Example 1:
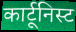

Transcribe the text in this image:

कार्टूनिस्ट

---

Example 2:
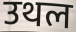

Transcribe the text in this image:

उथल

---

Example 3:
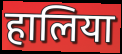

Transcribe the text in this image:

हालिया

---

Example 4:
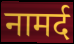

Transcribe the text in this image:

नामर्द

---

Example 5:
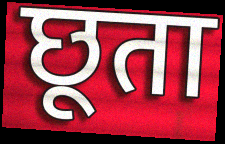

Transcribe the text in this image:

छूता